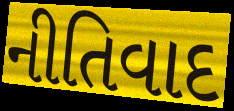
નીતિવાદ